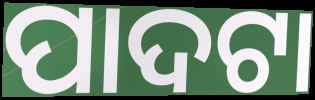
ପାଦଟା